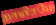
றாயிரமே